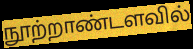
நூற்றாண்டளவில்